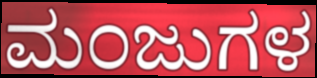
ಮಂಜುಗಳ